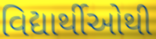
વિદ્યાર્થીઓથી